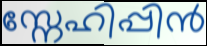
സ്നേഹിപ്പിൻ